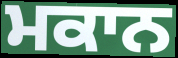
ਮਕਾਨ